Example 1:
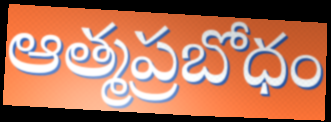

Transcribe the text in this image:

ఆత్మప్రబోధం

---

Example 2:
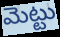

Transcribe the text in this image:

మెట్టు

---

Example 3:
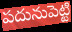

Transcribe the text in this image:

పదునుపెట్టి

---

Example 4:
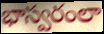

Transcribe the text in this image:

భాస్వరంలా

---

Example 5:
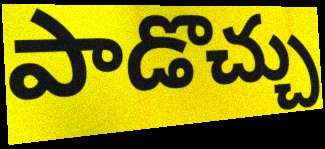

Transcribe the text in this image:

పాడొచ్చు